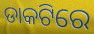
ଡାକଟିରେ